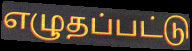
எழுதப்பட்டு